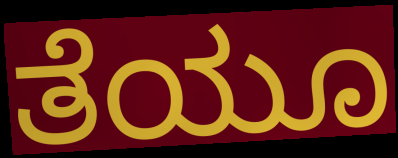
ತೆಯೂ